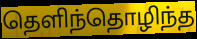
தெளிந்தொழிந்த